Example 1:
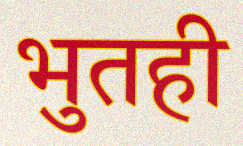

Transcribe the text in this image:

भुतही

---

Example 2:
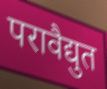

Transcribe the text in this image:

परावैद्युत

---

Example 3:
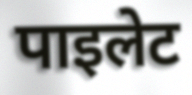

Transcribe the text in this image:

पाइलेट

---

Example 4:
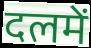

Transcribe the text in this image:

दलमें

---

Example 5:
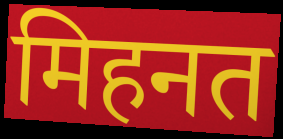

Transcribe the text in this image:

मिहनत